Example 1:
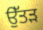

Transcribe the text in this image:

ਉੱਤੜ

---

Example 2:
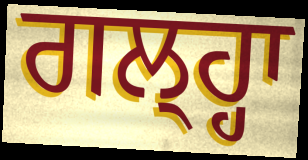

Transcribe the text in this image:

ਗਲ੍ਹ੍ਹਾ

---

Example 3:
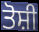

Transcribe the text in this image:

ਤੋਸ਼ੀ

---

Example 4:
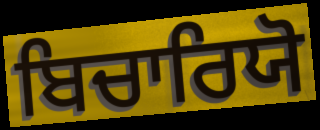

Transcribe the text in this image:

ਬਿਚਾਰਿਯੋ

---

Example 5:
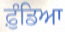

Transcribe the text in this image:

ਫ਼ੁੰਡਿਆ